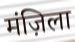
मंज़िला